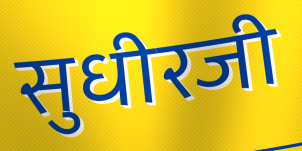
सुधीरजी